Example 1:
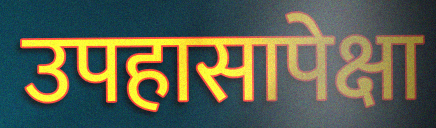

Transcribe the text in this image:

उपहासापेक्षा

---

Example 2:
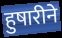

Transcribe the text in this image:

हुषारीने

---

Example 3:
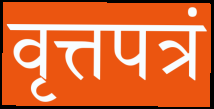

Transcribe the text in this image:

वृत्तपत्रं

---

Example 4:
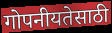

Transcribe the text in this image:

गोपनीयतेसाठी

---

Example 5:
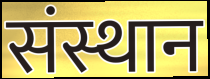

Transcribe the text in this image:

संस्थान